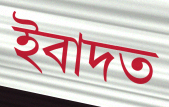
ইবাদত